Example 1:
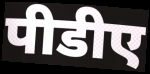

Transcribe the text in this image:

पीडीए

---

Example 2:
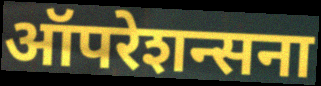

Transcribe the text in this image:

ऑपरेशन्सना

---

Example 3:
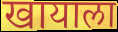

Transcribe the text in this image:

खायाला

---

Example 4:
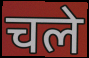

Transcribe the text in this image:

चले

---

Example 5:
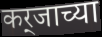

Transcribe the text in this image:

कर्जाच्या